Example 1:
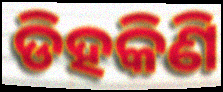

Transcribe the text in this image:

ଡିହକିଣି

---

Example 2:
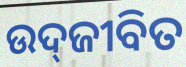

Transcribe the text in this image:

ଉଦ୍‍ଜୀବିତ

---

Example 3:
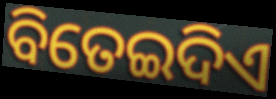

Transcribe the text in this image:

ବିତେଇଦିଏ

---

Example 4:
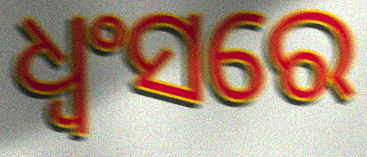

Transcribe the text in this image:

ଧ୍ଵଂସରେ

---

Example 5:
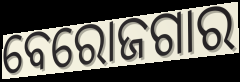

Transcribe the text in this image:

ବେରୋଜଗାର